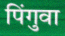
पिंगुवा